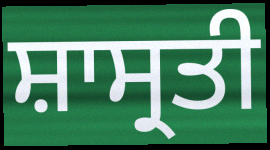
ਸ਼ਾਸ੍ਰਤੀ